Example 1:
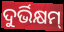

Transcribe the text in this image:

ଦୁର୍ଭିକ୍ଷମ୍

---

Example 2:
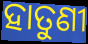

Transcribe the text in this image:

ହାତୁଣୀ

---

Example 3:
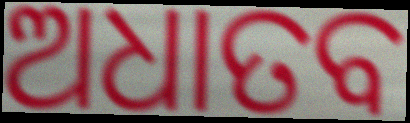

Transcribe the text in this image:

ଅଧାତବ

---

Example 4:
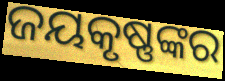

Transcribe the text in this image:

ଜୟକୃଷ୍ଣଙ୍କର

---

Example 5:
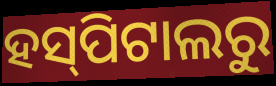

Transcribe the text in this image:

ହସ୍‍ପିଟାଲରୁ